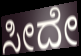
ಸೀದೇ